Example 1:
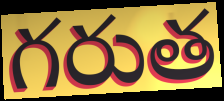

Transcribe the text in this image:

గరుత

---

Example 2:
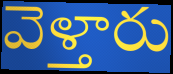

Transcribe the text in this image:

వెళ్తారు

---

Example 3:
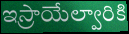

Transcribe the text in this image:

ఇస్రాయేల్వారికి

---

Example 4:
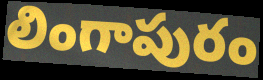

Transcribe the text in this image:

లింగాపురం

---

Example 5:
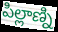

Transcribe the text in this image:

పిల్లాణ్ని